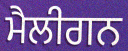
ਮੈਲੀਗਨ